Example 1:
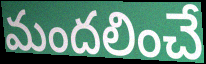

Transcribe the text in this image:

మందలించే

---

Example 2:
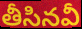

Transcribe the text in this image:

తీసినవీ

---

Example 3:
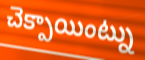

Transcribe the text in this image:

చెక్పాయింట్ను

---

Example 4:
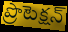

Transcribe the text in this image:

ప్రొటెక్షన్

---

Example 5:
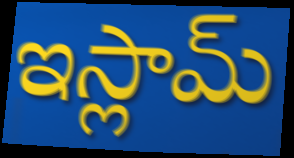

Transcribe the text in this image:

ఇస్లామ్